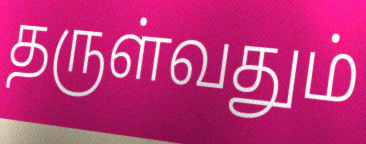
தருள்வதும்